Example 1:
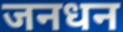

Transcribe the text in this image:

जनधन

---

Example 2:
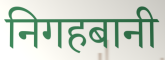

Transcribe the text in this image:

निगहबानी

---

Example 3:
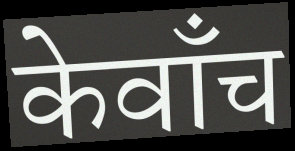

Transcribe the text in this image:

केवाँच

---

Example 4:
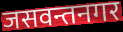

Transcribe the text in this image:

जसवन्तनगर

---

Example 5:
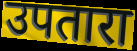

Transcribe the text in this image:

उपतारा